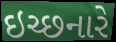
ઇચ્છનારે